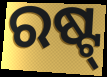
ରଷ୍ଟ୍